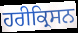
ਹਰੀਕ੍ਰਿਸਨ